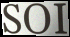
SOI